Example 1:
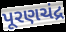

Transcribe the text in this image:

પૂરણચંદ્ર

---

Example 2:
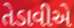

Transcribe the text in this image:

તેડાવીએ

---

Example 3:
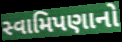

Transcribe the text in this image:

સ્વામિપણાનો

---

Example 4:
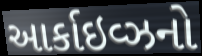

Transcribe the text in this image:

આર્કાઇવ્ઝનો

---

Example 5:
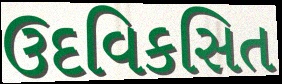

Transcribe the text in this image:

ઉદવિકસિત